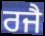
ਰਜੈ